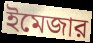
ইমেজার